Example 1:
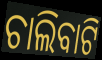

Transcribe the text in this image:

ଚାଲିବାଟି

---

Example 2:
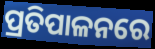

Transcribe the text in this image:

ପ୍ରତିପାଳନରେ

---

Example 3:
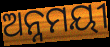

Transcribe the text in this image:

ଅନ୍ନମୟୀ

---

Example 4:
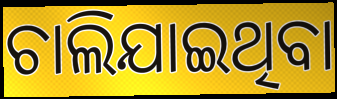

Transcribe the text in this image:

ଚାଲିଯାଇଥିବା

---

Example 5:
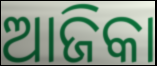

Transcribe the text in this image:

ଆଜିକା